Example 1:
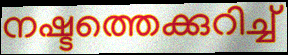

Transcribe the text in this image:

നഷ്ടത്തെക്കുറിച്ച്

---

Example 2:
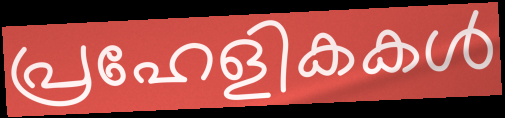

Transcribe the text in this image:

പ്രഹേളികകൾ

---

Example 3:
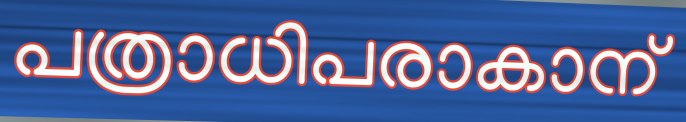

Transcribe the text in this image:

പത്രാധിപരാകാന്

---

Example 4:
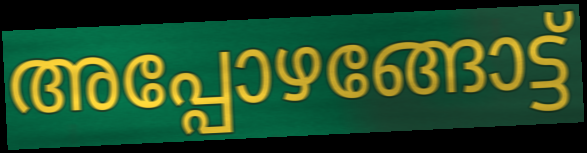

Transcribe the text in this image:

അപ്പോഴങ്ങോട്ട്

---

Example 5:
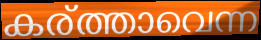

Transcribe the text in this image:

കര്ത്താവെന്ന